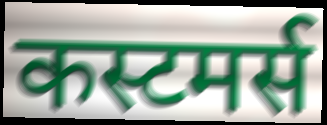
कस्टमर्स